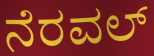
ನೆರವಲ್